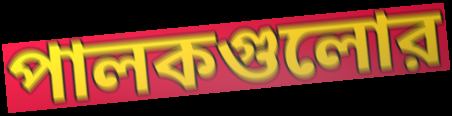
পালকগুলোর